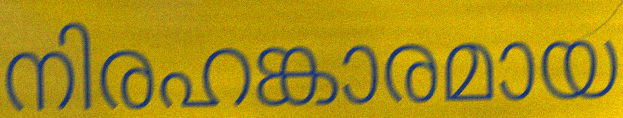
നിരഹങ്കാരമായ